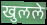
खुलले